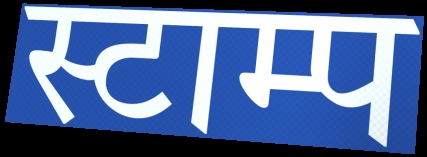
स्टाम्प